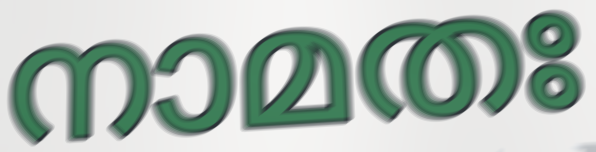
നാമതഃ